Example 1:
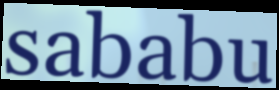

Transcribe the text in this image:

sababu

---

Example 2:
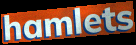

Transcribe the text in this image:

hamlets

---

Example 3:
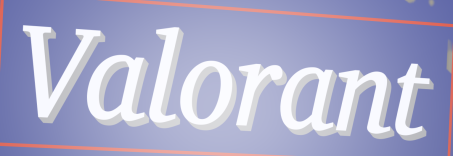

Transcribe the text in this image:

Valorant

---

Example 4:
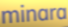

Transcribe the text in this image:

minara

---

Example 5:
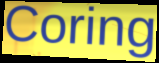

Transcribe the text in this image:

Coring